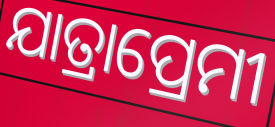
ଯାତ୍ରାପ୍ରେମୀ